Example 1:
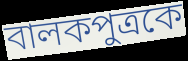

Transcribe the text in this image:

বালকপুত্রকে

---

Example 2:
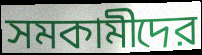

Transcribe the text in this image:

সমকামীদের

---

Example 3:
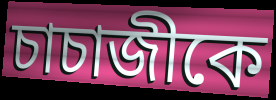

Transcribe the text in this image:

চাচাজীকে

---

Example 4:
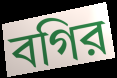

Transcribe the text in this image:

বগির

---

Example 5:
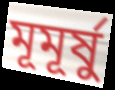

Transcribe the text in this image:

মূমূর্ষু